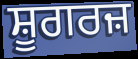
ਸ਼ੂਗਰਜ਼